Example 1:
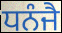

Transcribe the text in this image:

ਧਨੰਜੈ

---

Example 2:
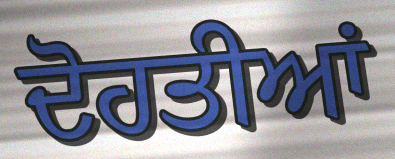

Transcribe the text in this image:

ਦੋਹਤੀਆਂ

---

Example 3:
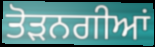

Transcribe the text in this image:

ਤੋੜਨਗੀਆਂ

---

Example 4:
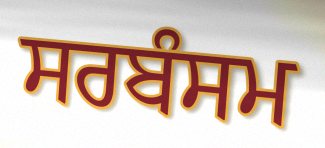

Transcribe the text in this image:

ਸਰਬੰਸਮ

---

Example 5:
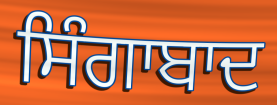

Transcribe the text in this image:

ਸਿੰਗਾਬਾਦ